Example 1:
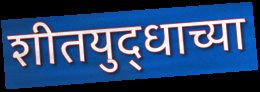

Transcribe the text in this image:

शीतयुद्धाच्या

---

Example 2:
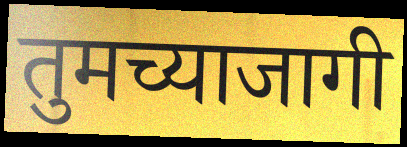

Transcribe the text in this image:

तुमच्याजागी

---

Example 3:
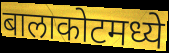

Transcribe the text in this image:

बालाकोटमध्ये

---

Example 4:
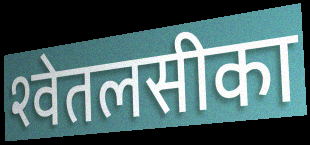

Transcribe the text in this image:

श्वेतलसीका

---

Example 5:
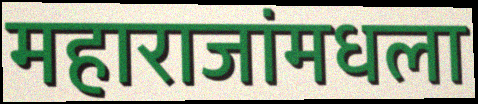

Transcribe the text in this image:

महाराजांमधला